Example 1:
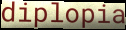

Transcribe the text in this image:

diplopia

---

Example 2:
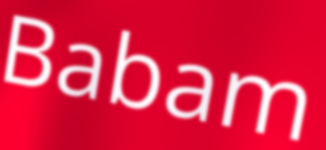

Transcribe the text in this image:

Babam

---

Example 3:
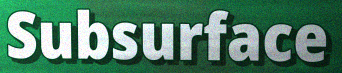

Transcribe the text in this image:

Subsurface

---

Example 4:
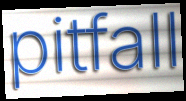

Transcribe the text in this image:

pitfall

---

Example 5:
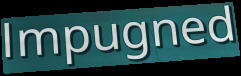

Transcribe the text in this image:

Impugned